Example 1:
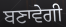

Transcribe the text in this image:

ਬਣਾਵੇਗੀ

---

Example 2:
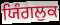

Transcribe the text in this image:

ਯਿੰਗਲੁਕ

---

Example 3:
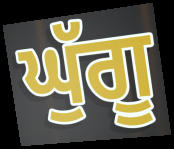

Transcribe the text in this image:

ਘੁੱਗੂ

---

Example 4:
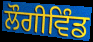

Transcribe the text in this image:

ਲੌਗੀਵਿੰਡ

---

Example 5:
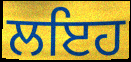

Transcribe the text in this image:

ਲਇਹ